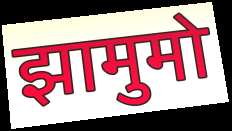
झामुमो